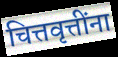
चित्तवृत्तींना